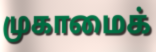
முகாமைக்